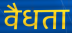
वैधता